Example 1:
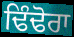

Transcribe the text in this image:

ਢਿੰਢੋਰਾ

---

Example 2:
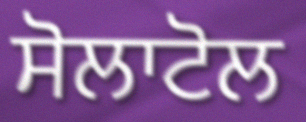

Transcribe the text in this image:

ਸੋਲਾਟੋਲ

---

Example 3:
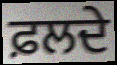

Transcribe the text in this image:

ਫ਼ਲਦੇ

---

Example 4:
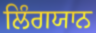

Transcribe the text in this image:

ਲਿੰਗਯਾਨ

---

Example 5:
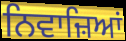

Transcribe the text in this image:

ਨਿਵਾਜ਼ਿਆਂ